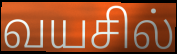
வயசில்